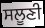
ਸਲੂਣੀ